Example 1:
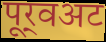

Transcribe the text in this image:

पूर्वअट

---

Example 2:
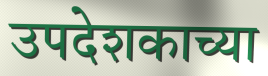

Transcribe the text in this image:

उपदेशकाच्या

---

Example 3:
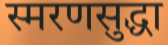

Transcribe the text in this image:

स्मरणसुद्धा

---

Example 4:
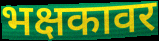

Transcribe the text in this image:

भक्षकावर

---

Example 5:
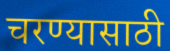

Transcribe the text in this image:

चरण्यासाठी